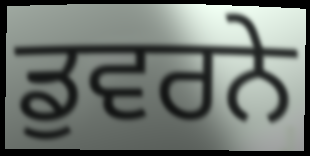
ਡੁਵਰਨੇ